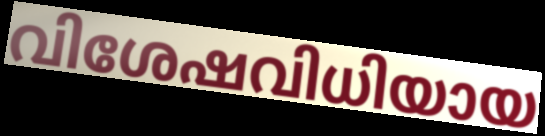
വിശേഷവിധിയായ